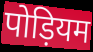
पोड़ियम